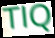
TIQ